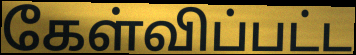
கேள்விப்பட்ட